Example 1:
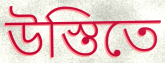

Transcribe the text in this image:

উস্তিতে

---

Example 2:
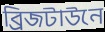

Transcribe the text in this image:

ব্রিজটাউনে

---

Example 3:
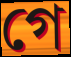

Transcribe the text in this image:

গে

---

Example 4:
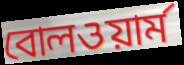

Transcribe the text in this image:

বোলওয়ার্ম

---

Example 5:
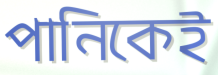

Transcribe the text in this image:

পানিকেই